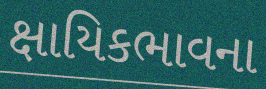
ક્ષાયિકભાવના